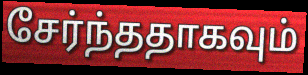
சேர்ந்ததாகவும்